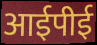
आईपीई